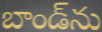
బాండ్‌ను